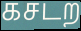
கசடற